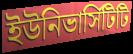
ইউনিভার্সিটিটি